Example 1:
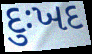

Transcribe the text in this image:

દુઃખદ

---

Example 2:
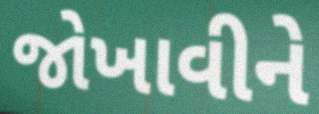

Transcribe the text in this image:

જોખાવીને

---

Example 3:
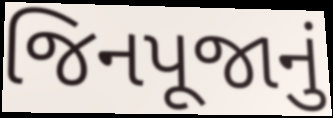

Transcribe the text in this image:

જિનપૂજાનું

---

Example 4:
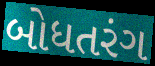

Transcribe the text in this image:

બોધતરંગ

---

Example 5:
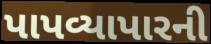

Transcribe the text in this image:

પાપવ્યાપારની